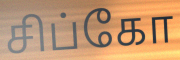
சிப்கோ